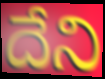
దేని